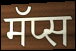
मॅप्स